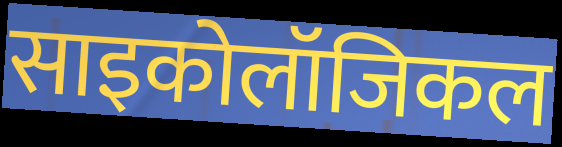
साइकोलॉजिकल